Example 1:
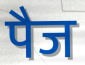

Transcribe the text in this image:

पैज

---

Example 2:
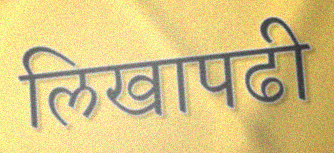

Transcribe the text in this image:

लिखापढी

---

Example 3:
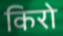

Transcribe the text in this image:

किरो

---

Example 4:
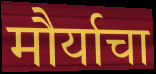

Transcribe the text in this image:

मौर्याचा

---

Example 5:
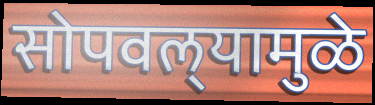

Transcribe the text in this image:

सोपवल्यामुळे